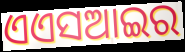
ଏଏସଆଇର